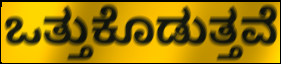
ಒತ್ತುಕೊಡುತ್ತವೆ